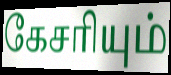
கேசரியும்